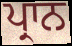
ਪ੍ਰਾਨ